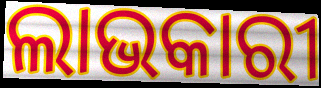
ଲାଭକାରୀ